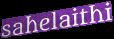
sahelaithi